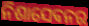
ନିଶାସେବନର